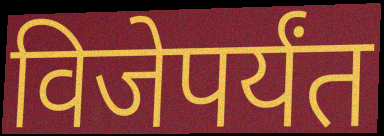
विजेपर्यंत